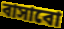
বাসাবো